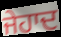
ਜੇਹਾਦ